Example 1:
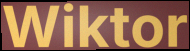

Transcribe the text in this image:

Wiktor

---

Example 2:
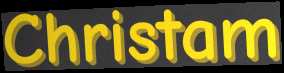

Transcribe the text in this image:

Christam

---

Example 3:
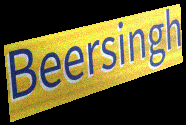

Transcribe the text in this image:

Beersingh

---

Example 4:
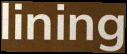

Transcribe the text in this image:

lining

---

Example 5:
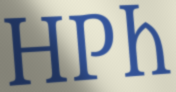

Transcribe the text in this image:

HPh